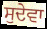
ਸੁਦੇਵਾ